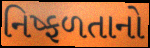
નિષ્ફળતાનો